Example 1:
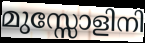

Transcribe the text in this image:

മുസ്സോളിനി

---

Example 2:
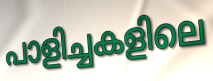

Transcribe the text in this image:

പാളിച്ചകളിലെ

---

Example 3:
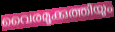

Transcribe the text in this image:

വൈരമൂക്കുത്തിയും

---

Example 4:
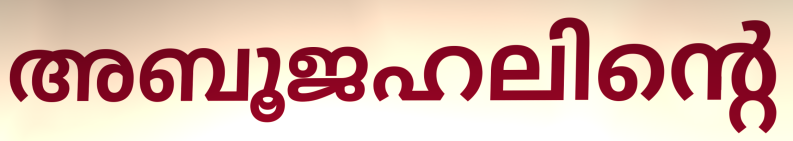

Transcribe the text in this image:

അബൂജഹലിന്റെ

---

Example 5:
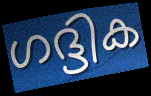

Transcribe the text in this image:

ഗദ്ദിക